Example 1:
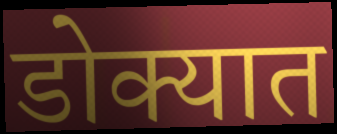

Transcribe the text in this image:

डोक्यात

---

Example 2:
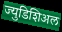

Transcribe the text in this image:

ज्युडिशिअल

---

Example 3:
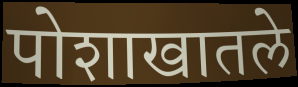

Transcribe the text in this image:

पोशाखातले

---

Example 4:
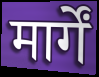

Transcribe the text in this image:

मार्गें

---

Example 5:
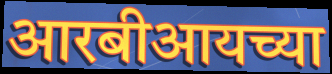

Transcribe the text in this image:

आरबीआयच्या